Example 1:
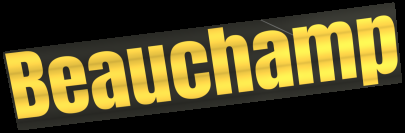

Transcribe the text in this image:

Beauchamp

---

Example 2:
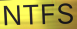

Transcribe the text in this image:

NTFS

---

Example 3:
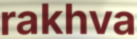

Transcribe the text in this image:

rakhva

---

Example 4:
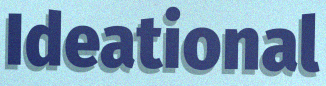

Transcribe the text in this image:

Ideational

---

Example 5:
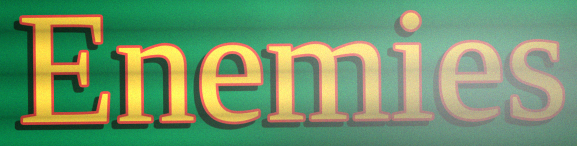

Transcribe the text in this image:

Enemies